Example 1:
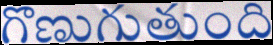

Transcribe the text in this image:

గొణుగుతుంది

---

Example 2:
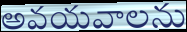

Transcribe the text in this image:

అవయవాలను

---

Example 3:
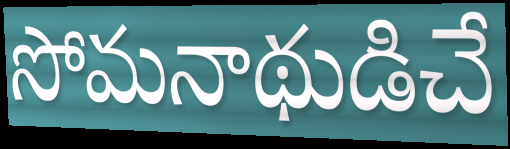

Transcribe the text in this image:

సోమనాథుడిచే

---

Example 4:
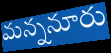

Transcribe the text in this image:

మన్ననూరు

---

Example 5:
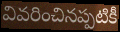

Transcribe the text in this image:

వివరించినప్పటికీ